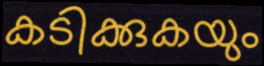
കടിക്കുകയും